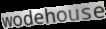
wodehouse